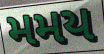
મમય